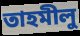
তাহমীলু